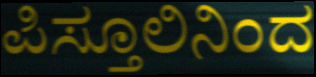
ಪಿಸ್ತೂಲಿನಿಂದ